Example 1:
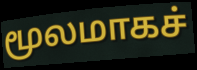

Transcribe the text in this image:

மூலமாகச்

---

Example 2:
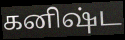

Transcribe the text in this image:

கனிஷ்ட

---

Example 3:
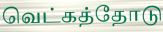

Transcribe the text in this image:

வெட்கத்தோடு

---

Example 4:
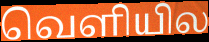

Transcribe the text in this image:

வெளியில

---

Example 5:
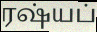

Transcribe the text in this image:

ரஷ்யப்